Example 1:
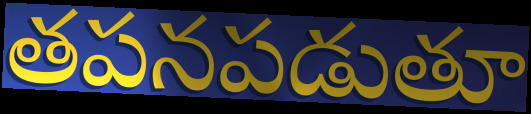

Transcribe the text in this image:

తపనపడుతూ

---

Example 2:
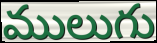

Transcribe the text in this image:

ములుగు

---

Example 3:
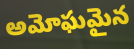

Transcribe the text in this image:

అమోఘమైన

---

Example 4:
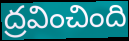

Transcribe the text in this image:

ద్రవించింది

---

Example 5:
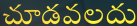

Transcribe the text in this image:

చూడవలదు